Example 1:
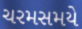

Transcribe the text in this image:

ચરમસમયે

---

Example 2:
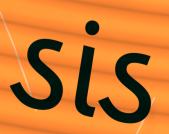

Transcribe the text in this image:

ડાંડ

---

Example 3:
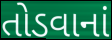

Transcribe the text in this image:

તોડવાનાં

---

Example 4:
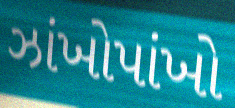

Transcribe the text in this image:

ઝાંખોપાંખો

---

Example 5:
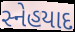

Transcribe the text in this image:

સ્નેહયાદ